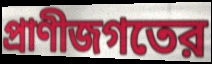
প্রাণীজগতের